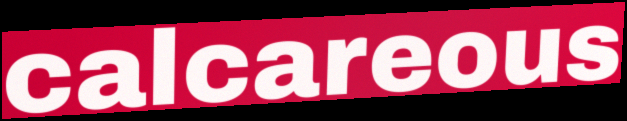
calcareous